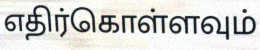
எதிர்கொள்ளவும்